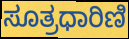
ಸೂತ್ರಧಾರಿಣಿ